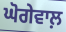
ਘੋਗੇਵਾਲ਼